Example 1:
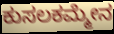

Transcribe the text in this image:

ಕುಸಲಕಮ್ಮೇನ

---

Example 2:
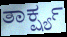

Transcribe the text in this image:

ತಾರ್ಕ್ಷ್ಯ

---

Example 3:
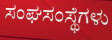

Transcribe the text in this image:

ಸಂಘಸಂಸ್ಥೆಗಳು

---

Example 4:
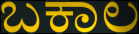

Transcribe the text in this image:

ಬಕಾಲ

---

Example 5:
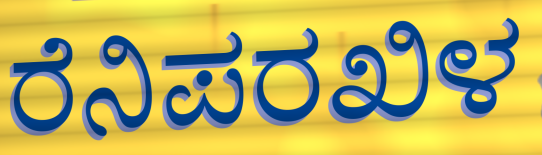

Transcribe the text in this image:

ರೆನಿಪರಖಿಳ